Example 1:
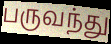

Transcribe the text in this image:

பருவந்து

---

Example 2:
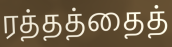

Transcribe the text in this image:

ரத்தத்தைத்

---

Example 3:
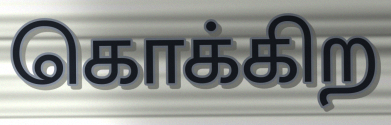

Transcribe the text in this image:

கொக்கிற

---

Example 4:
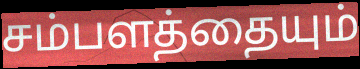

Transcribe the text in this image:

சம்பளத்தையும்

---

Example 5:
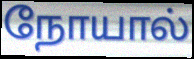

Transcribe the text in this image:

நோயால்